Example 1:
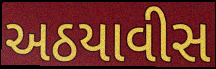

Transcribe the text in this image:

અઠયાવીસ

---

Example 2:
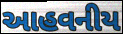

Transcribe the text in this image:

આહવનીય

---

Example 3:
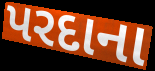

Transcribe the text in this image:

પરદાના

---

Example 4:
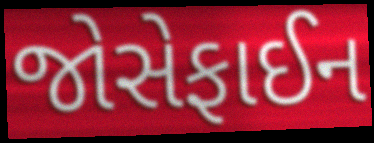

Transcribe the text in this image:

જોસેફાઈન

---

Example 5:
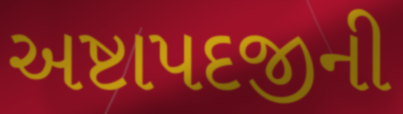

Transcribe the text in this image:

અષ્ટાપદજીની